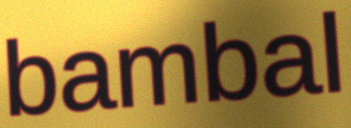
bambal